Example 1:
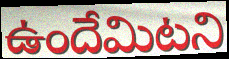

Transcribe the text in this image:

ఉందేమిటని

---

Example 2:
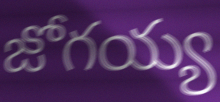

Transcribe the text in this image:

జోగయ్య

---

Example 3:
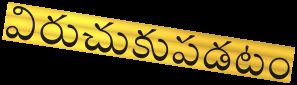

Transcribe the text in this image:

విరుచుకుపడటం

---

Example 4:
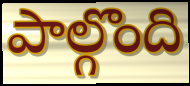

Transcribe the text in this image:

పాల్గొంది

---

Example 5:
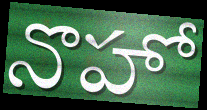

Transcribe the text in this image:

నొహో